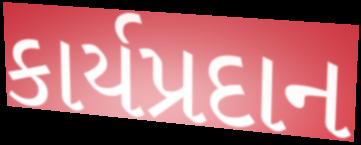
કાર્યપ્રદાન